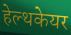
हेल्थकेयर